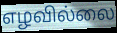
எழவில்லை